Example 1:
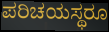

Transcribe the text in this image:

ಪರಿಚಯಸ್ಥರೂ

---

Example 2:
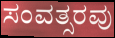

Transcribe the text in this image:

ಸಂವತ್ಸರವು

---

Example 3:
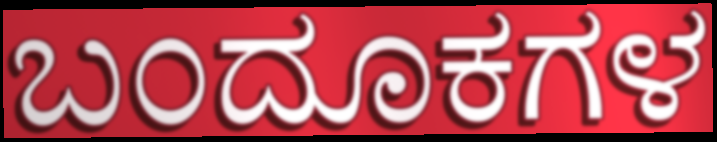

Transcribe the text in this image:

ಬಂದೂಕಗಳ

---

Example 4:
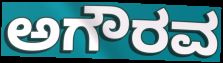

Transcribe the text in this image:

ಅಗೌರವ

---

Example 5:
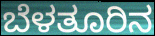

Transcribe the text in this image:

ಬೆಳತೂರಿನ